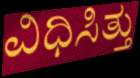
ವಿಧಿಸಿತ್ತು